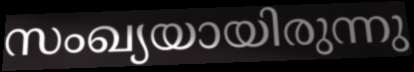
സംഖ്യയായിരുന്നു